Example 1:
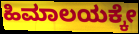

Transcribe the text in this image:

ಹಿಮಾಲಯಕ್ಕೇ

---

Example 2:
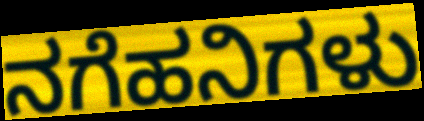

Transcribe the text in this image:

ನಗೆಹನಿಗಳು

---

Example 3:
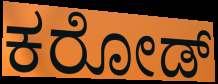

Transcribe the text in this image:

ಕರೋಡ್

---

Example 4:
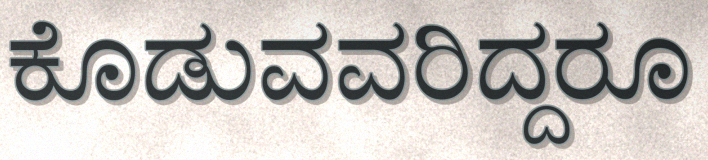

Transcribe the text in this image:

ಕೊಡುವವರಿದ್ದರೂ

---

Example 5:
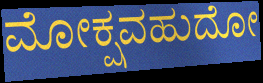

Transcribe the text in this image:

ಮೋಕ್ಷವಹುದೋ